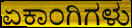
ಏಕಾಂಗಿಗಳು